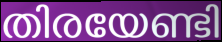
തിരയേണ്ടി